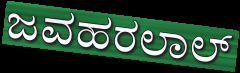
ಜವಹರಲಾಲ್